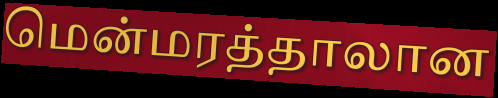
மென்மரத்தாலான